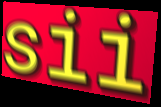
sii